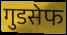
गुडसेफ